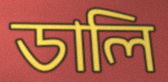
ডালি